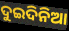
ଦୁଇଦିନିଆ